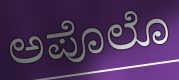
ಅಪೊಲೊ